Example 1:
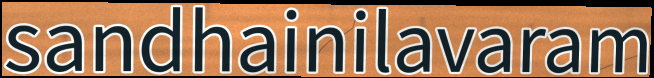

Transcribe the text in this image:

sandhainilavaram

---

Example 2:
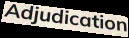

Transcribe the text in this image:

Adjudication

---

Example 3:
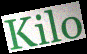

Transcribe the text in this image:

Kilo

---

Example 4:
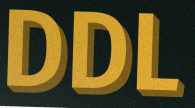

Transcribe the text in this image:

DDL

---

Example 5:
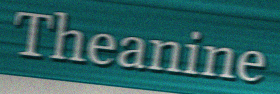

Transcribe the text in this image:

Theanine